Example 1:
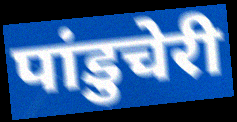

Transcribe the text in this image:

पांडुचेरी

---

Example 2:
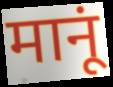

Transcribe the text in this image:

मानूं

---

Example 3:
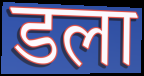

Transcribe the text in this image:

डला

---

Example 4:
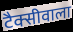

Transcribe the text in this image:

टैक्सीवाला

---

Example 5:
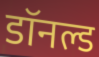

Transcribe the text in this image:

डॉनल्ड